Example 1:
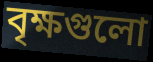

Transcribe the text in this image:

বৃক্ষগুলো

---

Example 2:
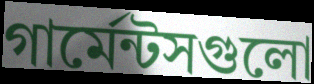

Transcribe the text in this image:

গার্মেন্টসগুলো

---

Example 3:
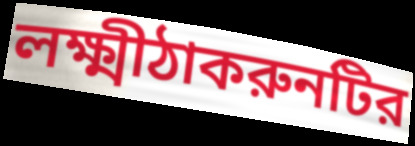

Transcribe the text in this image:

লক্ষ্মীঠাকরুনটির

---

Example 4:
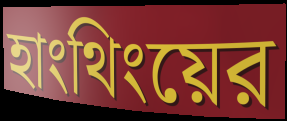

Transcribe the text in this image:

হাংথিংয়ের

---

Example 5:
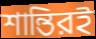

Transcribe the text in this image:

শান্তিরই